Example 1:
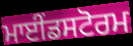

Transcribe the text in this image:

ਮਾਈਂਡਸਟੋਰਮ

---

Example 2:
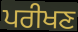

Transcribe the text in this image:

ਪਰੀਖਣ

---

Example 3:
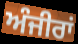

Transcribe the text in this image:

ਅੰਜੀਰਾਂ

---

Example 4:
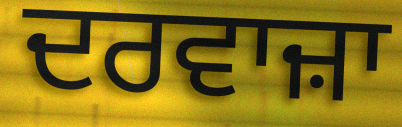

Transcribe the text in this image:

ਦਰਵਾਜ਼ਾ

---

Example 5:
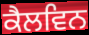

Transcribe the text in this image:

ਕੈਲਵਿਨ